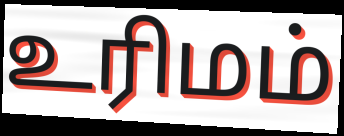
உரிமம்